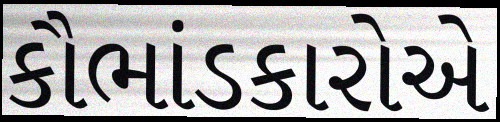
કૌભાંડકારોએ